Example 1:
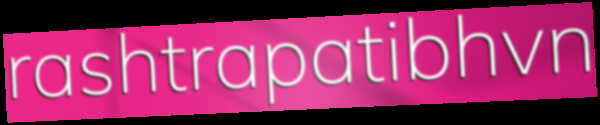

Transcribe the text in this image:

rashtrapatibhvn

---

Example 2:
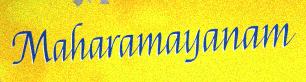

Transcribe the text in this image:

Maharamayanam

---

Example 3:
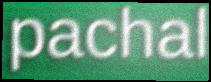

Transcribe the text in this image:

pachal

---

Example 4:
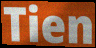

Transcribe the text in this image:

Tien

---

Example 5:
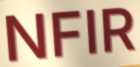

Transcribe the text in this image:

NFIR